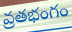
వ్రతభంగం